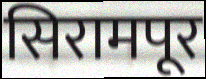
सिरामपूर